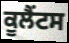
ਕੂਲੈਂਟਸ